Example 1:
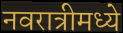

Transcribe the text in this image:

नवरात्रीमध्ये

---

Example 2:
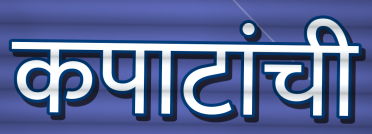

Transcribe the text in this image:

कपाटांची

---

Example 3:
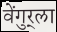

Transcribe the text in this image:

वेंगुर्ला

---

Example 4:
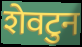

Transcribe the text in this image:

शेवटुन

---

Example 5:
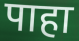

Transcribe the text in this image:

पाहा